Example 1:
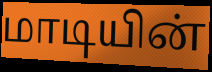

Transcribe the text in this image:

மாடியின்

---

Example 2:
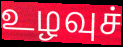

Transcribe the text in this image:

உழவுச்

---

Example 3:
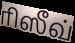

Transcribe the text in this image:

ரிஸீவ்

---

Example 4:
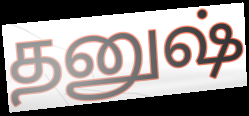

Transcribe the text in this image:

தனுஷ்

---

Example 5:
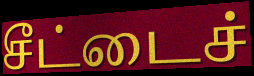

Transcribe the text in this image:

சீட்டைச்